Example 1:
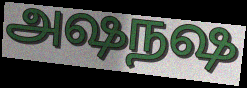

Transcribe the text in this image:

அஷநஷ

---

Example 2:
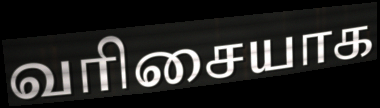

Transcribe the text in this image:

வரிசையாக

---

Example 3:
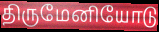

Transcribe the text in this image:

திருமேனியோடு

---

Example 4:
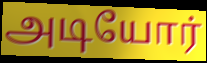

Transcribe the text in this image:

அடியோர்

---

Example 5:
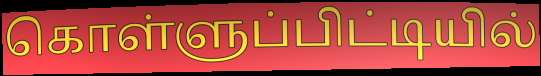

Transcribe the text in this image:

கொள்ளுப்பிட்டியில்